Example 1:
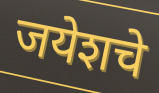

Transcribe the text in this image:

जयेशचे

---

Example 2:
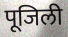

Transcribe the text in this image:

पूजिली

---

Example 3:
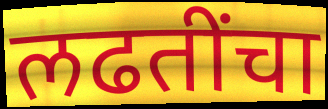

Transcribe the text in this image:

लढतींचा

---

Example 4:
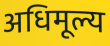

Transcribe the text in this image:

अधिमूल्य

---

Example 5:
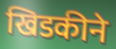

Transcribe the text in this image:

खिडकीने